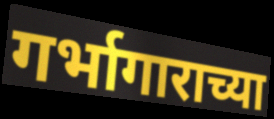
गर्भागाराच्या